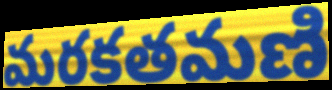
మరకతమణి